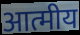
आत्मीय